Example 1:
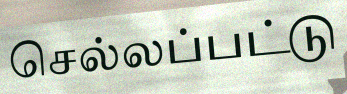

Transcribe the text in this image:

செல்லப்பட்டு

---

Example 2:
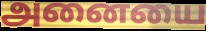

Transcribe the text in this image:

அனையை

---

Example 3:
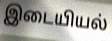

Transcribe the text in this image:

இடையியல்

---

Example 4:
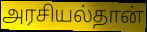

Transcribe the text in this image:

அரசியல்தான்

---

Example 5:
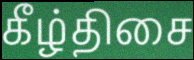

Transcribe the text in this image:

கீழ்திசை